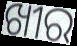
ଖୀର